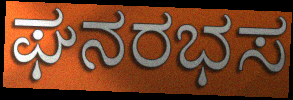
ಘನರಭಸ